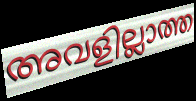
അവളില്ലാത്ത